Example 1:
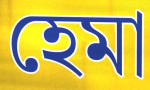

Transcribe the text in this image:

হেমা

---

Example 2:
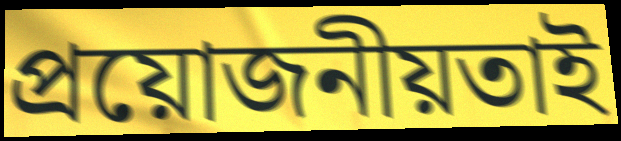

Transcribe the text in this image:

প্ৰয়োজনীয়তাই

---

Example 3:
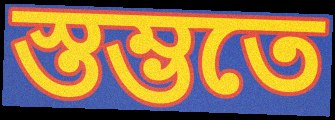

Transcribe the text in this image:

স্তম্ভতে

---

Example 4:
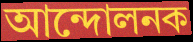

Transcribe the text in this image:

আন্দোলনক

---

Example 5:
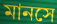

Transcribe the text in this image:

মানসে